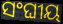
ସଂଘୀୟ